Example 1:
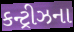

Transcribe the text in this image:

કન્ટ્રીઝના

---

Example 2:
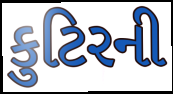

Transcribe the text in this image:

કુટિરની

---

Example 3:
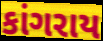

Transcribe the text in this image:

કાંગરાય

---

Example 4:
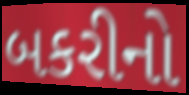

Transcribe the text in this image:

બકરીનો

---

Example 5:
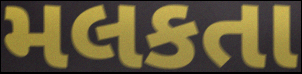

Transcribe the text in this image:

મલકતા